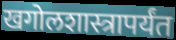
खगोलशास्त्रापर्यंत